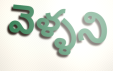
వెళ్ళని